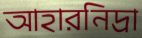
আহারনিদ্রা